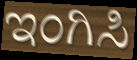
ಇಂಗಿಸಿ